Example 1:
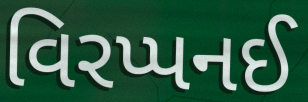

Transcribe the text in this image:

વિરપ્પનઈ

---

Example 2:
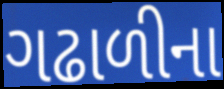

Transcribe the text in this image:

ગઢાળીના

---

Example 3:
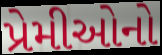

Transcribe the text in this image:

પ્રેમીઓનો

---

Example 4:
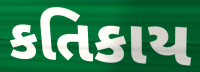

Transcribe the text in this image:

કતિકાય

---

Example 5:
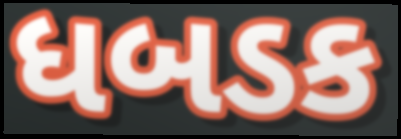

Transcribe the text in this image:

ધબડક